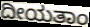
ದೀಯತಾಂ